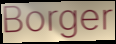
Borger